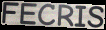
FECRIS